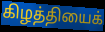
கிழத்தியைக்